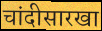
चांदीसारखा